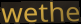
wethe